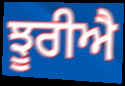
ਝੂਰੀਐ